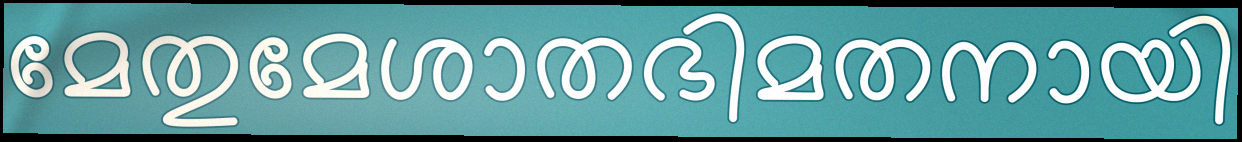
മേതുമേശാതഭിമതനായി